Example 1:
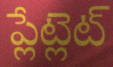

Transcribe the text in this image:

ప్లేట్లెట్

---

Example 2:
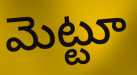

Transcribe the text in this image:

మెట్టూ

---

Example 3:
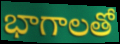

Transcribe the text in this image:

భాగాలతో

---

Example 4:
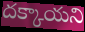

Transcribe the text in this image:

దక్కాయని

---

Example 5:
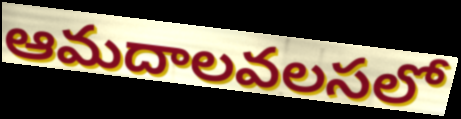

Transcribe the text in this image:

ఆమదాలవలసలో